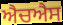
ਐਚਐਸ